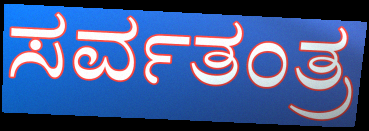
ಸರ್ವತಂತ್ರ